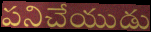
పనిచేయుడు